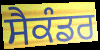
ਸੈਕੰਡਰ